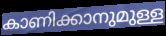
കാണിക്കാനുമുള്ള